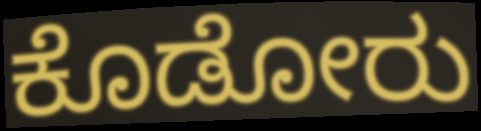
ಕೊಡೋರು